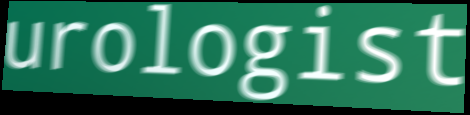
urologist